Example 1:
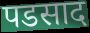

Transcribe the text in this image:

पडसाद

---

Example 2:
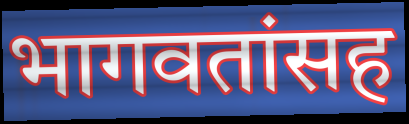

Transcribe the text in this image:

भागवतांसह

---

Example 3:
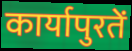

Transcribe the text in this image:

कार्यापुरतें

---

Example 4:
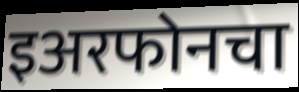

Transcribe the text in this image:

इअरफोनचा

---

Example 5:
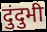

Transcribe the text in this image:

दुंदुभी